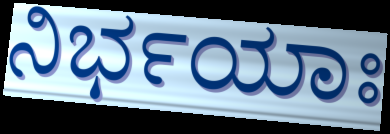
ನಿರ್ಭಯಾಃ